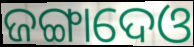
ଜଙ୍ଗାଦେଓ